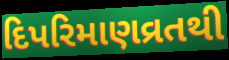
દિપરિમાણવ્રતથી